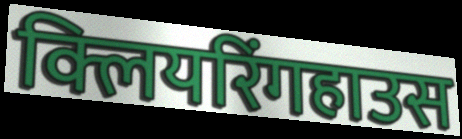
क्लियरिंगहाउस